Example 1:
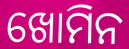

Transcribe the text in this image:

ଖୋମିନ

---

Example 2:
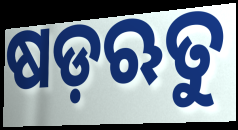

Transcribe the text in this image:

ଷଡ଼ଋତୁ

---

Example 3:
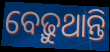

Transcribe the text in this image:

ବେଢ଼ୁଥାନ୍ତି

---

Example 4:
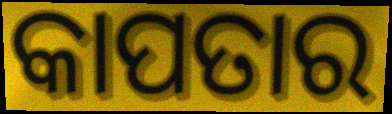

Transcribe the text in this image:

କାପତାର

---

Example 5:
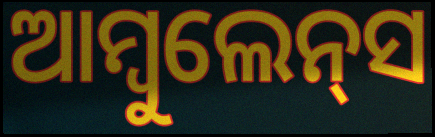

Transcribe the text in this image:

ଆମ୍ବୁଲେନ୍‍ସ